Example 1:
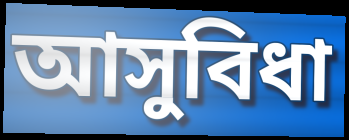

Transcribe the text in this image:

আসুবিধা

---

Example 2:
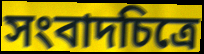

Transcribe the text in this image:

সংবাদচিত্রে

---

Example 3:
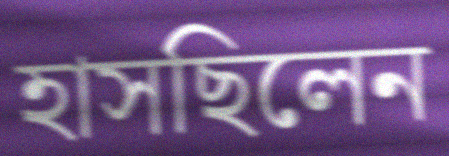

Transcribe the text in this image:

হাসছিলেন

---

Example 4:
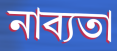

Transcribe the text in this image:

নাব্যতা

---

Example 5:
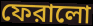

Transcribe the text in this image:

ফেরালো